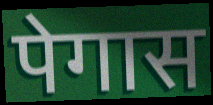
पेगास